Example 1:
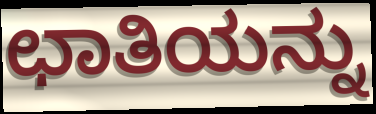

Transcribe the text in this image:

ಛಾತಿಯನ್ನು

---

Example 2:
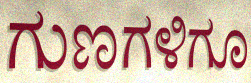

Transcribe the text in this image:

ಗುಣಗಳಿಗೂ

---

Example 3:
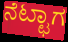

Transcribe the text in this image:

ನೆಟ್ಟಾಗ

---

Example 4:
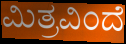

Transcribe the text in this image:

ಮಿತ್ರವಿಂದೆ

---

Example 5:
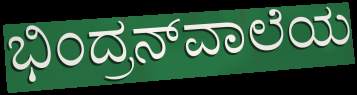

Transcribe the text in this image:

ಭಿಂದ್ರನ್‌ವಾಲೆಯ